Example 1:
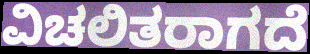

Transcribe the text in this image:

ವಿಚಲಿತರಾಗದೆ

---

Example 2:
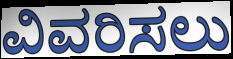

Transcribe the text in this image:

ವಿವರಿಸಲು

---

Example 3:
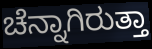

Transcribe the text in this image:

ಚೆನ್ನಾಗಿರುತ್ತಾ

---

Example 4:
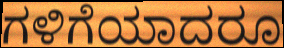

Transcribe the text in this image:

ಗಳಿಗೆಯಾದರೂ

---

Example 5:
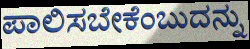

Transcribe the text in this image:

ಪಾಲಿಸಬೇಕೆಂಬುದನ್ನು